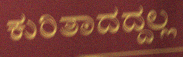
ಕುರಿತಾದದ್ದಲ್ಲ